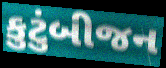
કુટુંબીજન